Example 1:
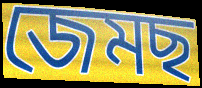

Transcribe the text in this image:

জেমছ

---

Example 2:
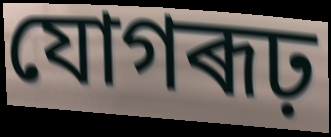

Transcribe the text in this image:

যোগৰূঢ়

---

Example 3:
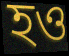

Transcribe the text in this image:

হও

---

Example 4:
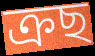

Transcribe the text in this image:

ক্ৰছ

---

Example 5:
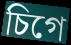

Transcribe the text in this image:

চিগে